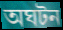
অঘটন